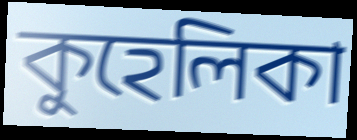
কুহেলিকা